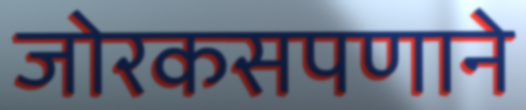
जोरकसपणाने